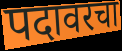
पदावरचा